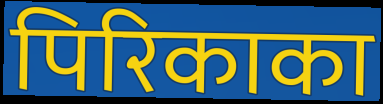
पिरिकाका